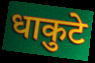
धाकुटे